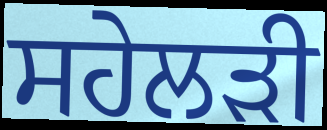
ਸਹੇਲੜੀ